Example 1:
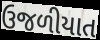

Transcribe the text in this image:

ઉજળીયાત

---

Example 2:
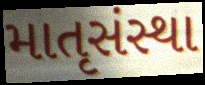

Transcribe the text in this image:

માતૃસંસ્થા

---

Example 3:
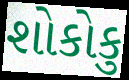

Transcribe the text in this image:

શોકોકુ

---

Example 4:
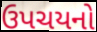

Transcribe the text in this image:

ઉપચયનો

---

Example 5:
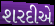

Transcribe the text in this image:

શરદીએ